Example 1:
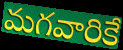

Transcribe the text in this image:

మగవారికే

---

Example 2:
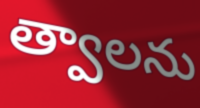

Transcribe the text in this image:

త్వాలను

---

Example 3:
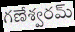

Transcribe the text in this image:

గణేశ్వరమ్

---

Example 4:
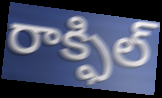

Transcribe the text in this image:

రాక్ఫిల్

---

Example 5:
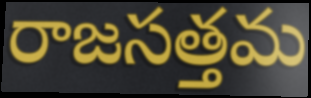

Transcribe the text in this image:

రాజసత్తమ